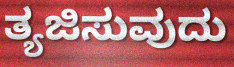
ತ್ಯಜಿಸುವುದು